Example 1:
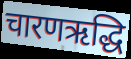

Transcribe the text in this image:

चारणऋद्धि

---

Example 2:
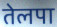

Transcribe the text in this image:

तेलपा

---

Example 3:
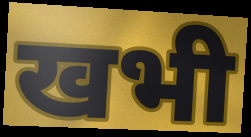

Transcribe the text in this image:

खभी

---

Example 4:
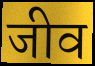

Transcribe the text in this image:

जीव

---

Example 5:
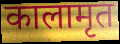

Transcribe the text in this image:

कालामृत